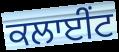
ਕਲਾਈਂਟ